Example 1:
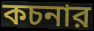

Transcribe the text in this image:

কচনার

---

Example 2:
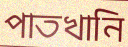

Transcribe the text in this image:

পাতখানি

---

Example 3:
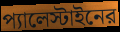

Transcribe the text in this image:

প্যালেস্টাইনের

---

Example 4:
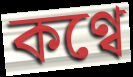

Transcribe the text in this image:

কণ্বে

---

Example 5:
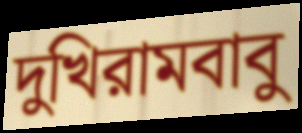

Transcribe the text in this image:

দুখিরামবাবু